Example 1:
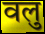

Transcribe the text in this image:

वलु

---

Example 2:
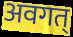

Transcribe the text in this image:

अवगत्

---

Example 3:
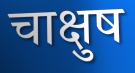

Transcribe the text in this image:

चाक्षुष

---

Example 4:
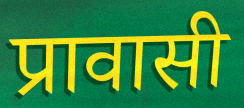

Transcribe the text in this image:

प्रावासी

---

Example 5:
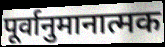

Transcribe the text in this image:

पूर्वानुमानात्मक